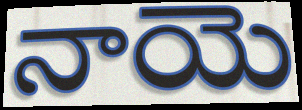
నాయె